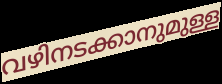
വഴിനടക്കാനുമുള്ള